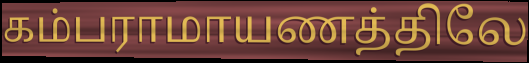
கம்பராமாயணத்திலே